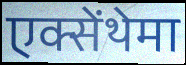
एक्सेंथेमा